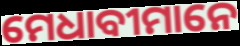
ମେଧାବୀମାନେ